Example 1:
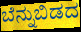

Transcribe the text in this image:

ಬೆನ್ನುಬಿಡದ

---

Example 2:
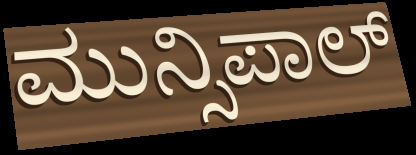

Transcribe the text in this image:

ಮುನ್ಸಿಪಾಲ್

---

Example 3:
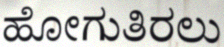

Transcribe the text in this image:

ಹೋಗುತಿರಲು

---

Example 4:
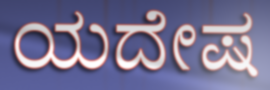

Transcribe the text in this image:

ಯದೇಷ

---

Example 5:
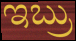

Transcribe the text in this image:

ಇಬ್ರು